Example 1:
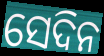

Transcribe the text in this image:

ସେଦିନ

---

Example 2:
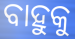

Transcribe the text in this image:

ବାହୁକୁ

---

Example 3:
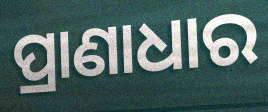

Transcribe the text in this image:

ପ୍ରାଣାଧାର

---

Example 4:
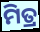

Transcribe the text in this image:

ମିତ୍ର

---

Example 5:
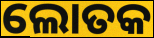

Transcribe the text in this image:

ଲୋତକ